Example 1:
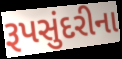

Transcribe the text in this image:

રૂપસુંદરીના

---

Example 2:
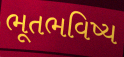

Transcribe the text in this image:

ભૂતભવિષ્ય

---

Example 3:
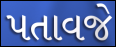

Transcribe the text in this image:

પતાવજે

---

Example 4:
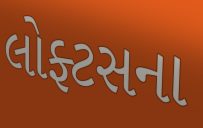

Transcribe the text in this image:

લોફ્ટસના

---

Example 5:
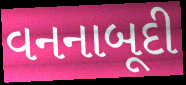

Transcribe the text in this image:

વનનાબૂદી